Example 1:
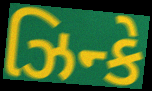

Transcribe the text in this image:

ઝિન્કે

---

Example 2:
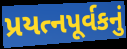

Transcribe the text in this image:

પ્રયત્નપૂર્વકનું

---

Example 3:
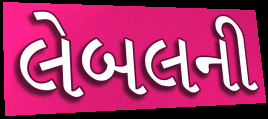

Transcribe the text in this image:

લેબલની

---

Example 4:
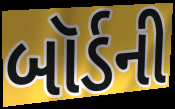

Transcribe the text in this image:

બૉર્ડની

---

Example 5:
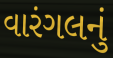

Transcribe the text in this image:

વારંગલનું